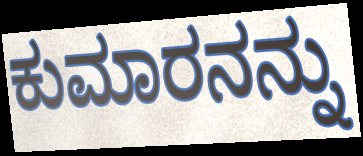
ಕುಮಾರನನ್ನು